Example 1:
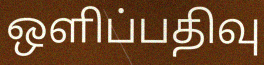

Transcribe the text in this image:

ஒளிப்பதிவு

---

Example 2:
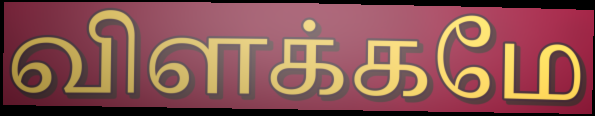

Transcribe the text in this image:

விளக்கமே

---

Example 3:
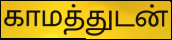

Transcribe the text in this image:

காமத்துடன்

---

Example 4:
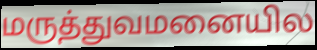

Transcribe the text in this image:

மருத்துவமனையில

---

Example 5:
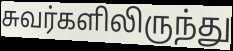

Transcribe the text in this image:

சுவர்களிலிருந்து